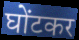
घोंटकर